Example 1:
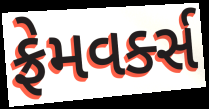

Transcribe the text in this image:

ફ્રેમવર્ક્સ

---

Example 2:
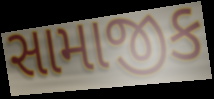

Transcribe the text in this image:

સામાજીક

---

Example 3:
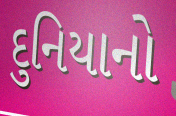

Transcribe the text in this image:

દુનિયાનો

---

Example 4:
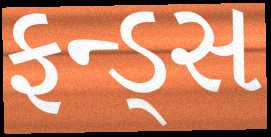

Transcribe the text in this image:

ફન્ડ્સ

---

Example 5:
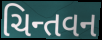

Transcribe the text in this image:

ચિન્તવન